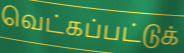
வெட்கப்பட்டுக்